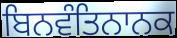
ਬਿਨਵੰਤਿਨਾਨਕ